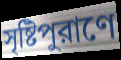
সৃষ্টিপুরাণে